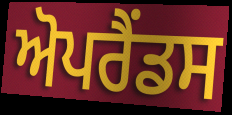
ਅੋਪਰੈਂਡਸ